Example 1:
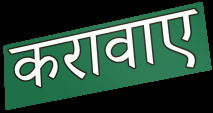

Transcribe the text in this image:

करावाए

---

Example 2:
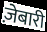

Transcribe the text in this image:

ज़ेबारी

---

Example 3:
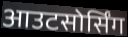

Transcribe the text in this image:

आउटसोर्सिंग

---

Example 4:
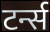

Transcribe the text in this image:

टर्न्स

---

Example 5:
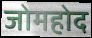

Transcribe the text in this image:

जोमहोद